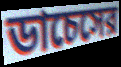
ডাচেসের